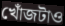
খোঁজটাও